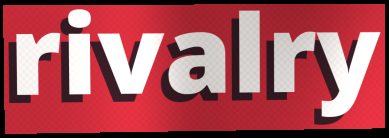
rivalry